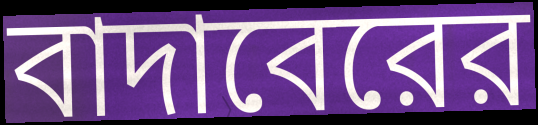
বাদাবেরের